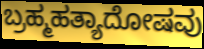
ಬ್ರಹ್ಮಹತ್ಯಾದೋಷವು